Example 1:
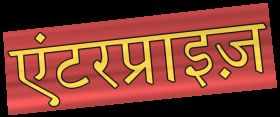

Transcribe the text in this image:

एंटरप्राइज़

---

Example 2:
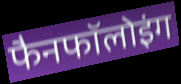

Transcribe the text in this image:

फैनफॉलोइंग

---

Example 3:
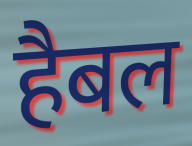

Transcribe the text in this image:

हैबल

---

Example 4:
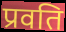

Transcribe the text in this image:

प्रवति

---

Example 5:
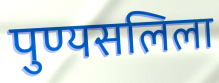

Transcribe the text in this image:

पुण्यसलिला